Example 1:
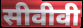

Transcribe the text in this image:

सीवीवी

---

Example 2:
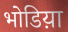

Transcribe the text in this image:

भोडिय़ा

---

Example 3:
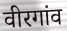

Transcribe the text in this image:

वीरगांव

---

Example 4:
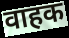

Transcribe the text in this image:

वाहक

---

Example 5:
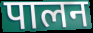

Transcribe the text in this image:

पालन